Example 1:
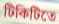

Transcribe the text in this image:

টিকিটিতে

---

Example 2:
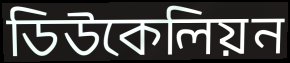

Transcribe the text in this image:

ডিউকেলিয়ন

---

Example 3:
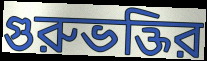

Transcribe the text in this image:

গুরুভক্তির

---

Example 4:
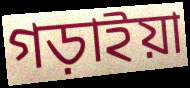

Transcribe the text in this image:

গড়াইয়া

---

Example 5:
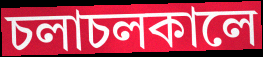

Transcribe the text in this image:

চলাচলকালে